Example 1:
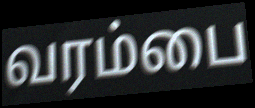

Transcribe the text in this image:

வரம்பை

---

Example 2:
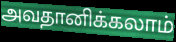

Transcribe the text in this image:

அவதானிக்கலாம்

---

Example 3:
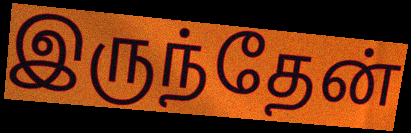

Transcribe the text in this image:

இருந்தேன்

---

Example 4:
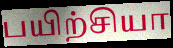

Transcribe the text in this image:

பயிற்சியா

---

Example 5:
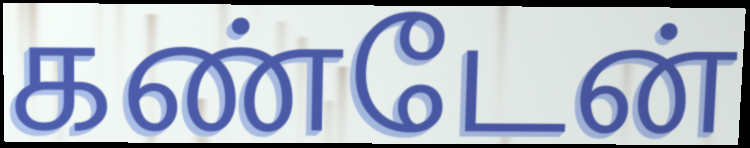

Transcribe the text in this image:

கண்டேன்